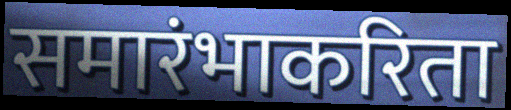
समारंभाकरिता